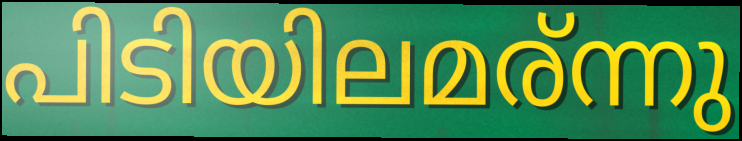
പിടിയിലമര്ന്നു